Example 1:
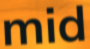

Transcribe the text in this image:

mid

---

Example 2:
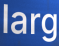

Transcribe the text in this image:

larg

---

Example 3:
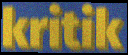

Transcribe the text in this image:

kritik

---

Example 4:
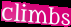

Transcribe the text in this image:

climbs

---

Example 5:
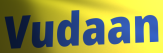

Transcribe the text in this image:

Vudaan